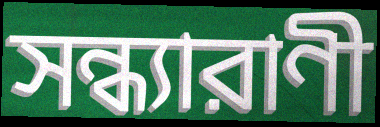
সন্ধ্যারাণী